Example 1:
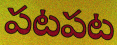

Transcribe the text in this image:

పటపట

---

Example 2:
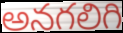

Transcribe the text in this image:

అనగలిగి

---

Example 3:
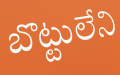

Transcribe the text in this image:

బొట్టులేని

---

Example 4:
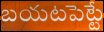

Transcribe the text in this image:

బయటపెట్టే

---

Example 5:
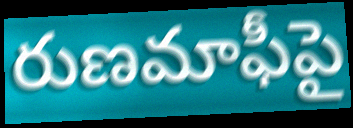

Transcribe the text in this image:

రుణమాఫీపై